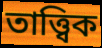
তাত্ত্বিক